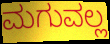
ಮಗುವಲ್ಲ